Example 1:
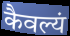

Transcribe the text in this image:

कैवल्यं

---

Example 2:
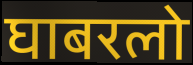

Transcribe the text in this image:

घाबरलो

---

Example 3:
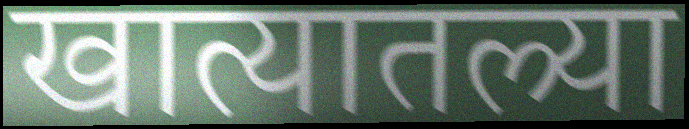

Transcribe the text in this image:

खात्यातल्या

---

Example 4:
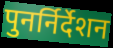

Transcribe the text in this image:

पुनर्निर्देशन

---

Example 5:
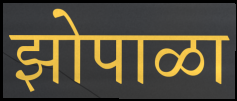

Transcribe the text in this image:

झोपाळा